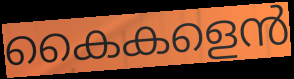
കൈകളെൻ